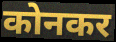
कोनकर